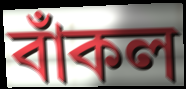
বাঁকল